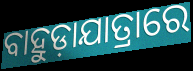
ବାହୁଡ଼ାଯାତ୍ରାରେ